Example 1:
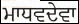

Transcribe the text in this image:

ਮਾਧਵਦੇਵਾ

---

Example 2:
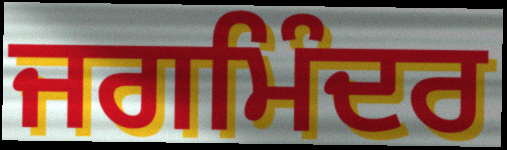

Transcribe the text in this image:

ਜਗਮਿੰਦਰ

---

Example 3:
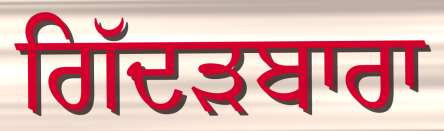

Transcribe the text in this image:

ਗਿੱਦੜਬਾਰਾ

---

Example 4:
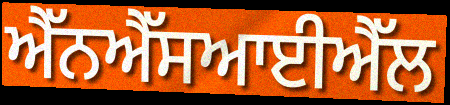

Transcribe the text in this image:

ਐੱਨਐੱਸਆਈਐੱਲ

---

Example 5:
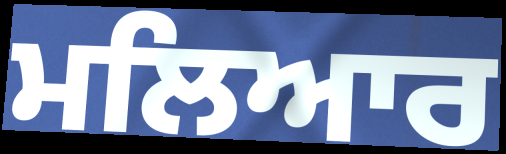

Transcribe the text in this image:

ਮਲਿਆਰ